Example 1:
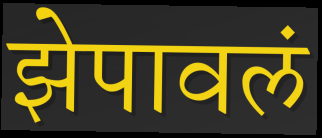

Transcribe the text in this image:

झेपावलं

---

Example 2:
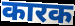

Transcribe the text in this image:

कारक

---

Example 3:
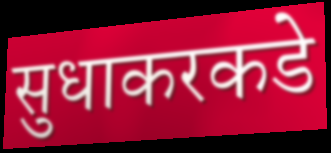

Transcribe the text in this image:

सुधाकरकडे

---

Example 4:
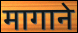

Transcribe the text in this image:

मागाने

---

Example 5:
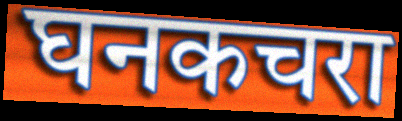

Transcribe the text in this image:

घनकचरा